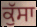
ਕੁੱਸਾ